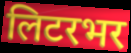
लिटरभर